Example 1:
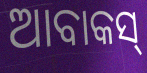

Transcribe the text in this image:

ଆବାକସ୍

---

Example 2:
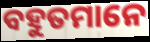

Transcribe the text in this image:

ବହୁତମାନେ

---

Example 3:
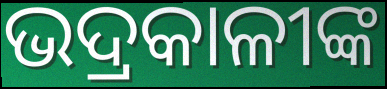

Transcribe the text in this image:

ଭଦ୍ରକାଳୀଙ୍କ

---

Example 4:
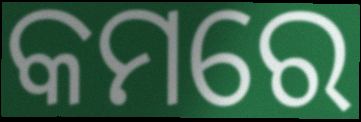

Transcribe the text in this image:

କମରେ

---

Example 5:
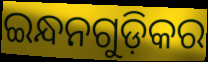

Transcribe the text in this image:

ଇନ୍ଧନଗୁଡ଼ିକର